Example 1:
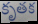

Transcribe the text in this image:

కృతక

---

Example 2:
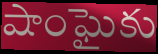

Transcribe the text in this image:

షాంఘైకు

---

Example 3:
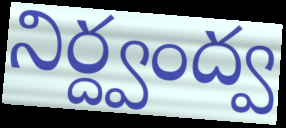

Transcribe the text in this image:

నిర్ద్వంద్వ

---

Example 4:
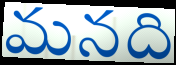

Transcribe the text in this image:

మనది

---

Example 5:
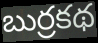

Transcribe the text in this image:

బుర్రకథ